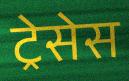
ट्रेसेस